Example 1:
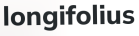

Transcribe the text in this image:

longifolius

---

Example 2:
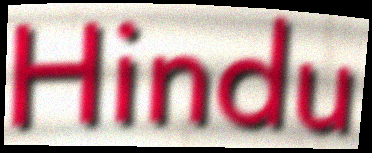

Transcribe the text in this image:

Hindu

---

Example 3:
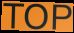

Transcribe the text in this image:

TOP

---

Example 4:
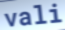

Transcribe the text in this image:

vali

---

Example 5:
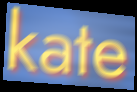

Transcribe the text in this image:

kate